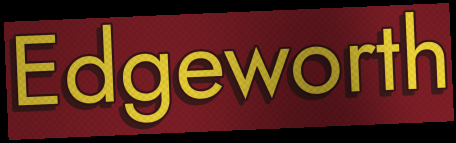
Edgeworth